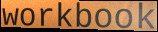
workbook